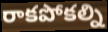
రాకపోకల్ని